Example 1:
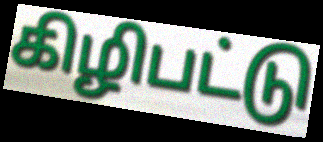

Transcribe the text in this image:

கிழிபட்டு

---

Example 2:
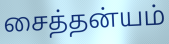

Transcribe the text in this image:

சைத்தன்யம்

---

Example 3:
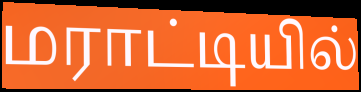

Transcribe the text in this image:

மராட்டியில்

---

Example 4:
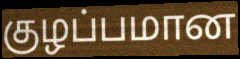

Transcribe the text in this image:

குழப்பமான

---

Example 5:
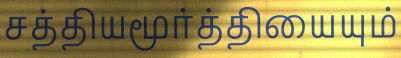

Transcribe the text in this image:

சத்தியமூர்த்தியையும்